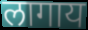
लागाय